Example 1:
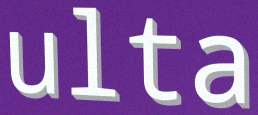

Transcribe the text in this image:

ulta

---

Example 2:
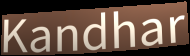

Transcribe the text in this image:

Kandhar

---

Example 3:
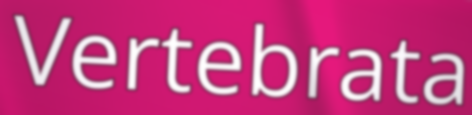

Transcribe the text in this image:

Vertebrata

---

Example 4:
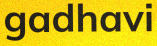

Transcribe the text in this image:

gadhavi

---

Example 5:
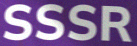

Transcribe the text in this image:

SSSR